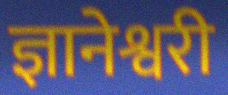
ज्ञानेश्वरी